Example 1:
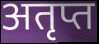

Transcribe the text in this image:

अतृप्त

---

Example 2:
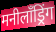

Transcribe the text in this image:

मनीलॉंड्रिंग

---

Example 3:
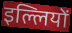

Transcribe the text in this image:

इल्लियों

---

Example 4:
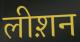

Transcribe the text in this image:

लीश़न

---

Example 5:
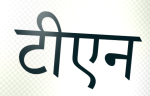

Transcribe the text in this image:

टीएन